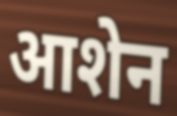
आशेन